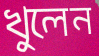
খুলেন